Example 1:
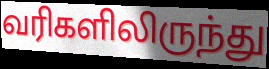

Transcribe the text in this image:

வரிகளிலிருந்து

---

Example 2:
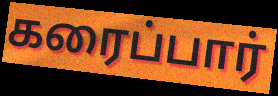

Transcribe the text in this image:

கரைப்பார்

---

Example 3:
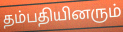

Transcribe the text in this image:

தம்பதியினரும்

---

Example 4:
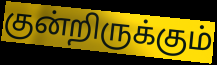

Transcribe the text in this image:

குன்றிருக்கும்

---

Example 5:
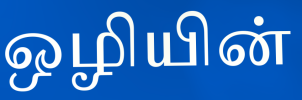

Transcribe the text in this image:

ஒழியின்